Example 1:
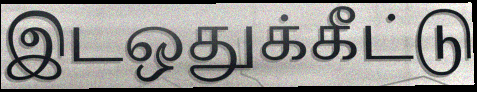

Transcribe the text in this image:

இடஒதுக்கீட்டு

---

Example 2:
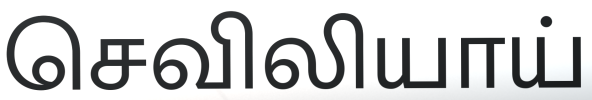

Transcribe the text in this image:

செவிலியாய்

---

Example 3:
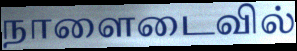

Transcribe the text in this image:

நாளைடைவில்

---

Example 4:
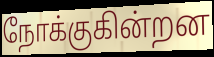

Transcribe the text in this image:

நோக்குகின்றன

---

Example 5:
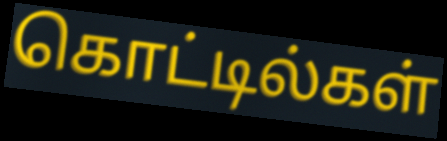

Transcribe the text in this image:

கொட்டில்கள்